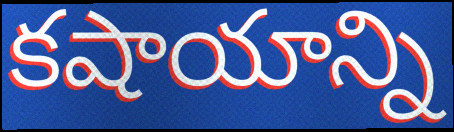
కషాయాన్ని